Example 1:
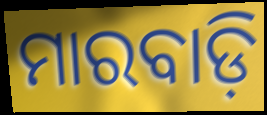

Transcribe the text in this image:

ମାରବାଡ଼ି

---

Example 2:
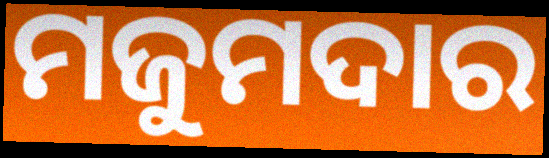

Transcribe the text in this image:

ମଜୁମଦାର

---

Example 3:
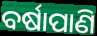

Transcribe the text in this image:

ବର୍ଷାପାଣି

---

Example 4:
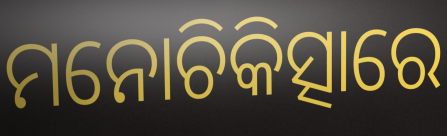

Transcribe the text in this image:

ମନୋଚିକିତ୍ସାରେ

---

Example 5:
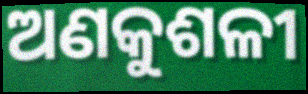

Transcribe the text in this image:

ଅଣକୁଶଳୀ